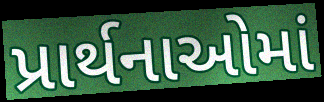
પ્રાર્થનાઓમાં